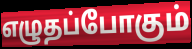
எழுதப்போகும்